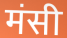
मंसी